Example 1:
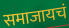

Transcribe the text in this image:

समाजायचं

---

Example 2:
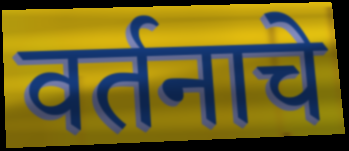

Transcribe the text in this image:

वर्तनाचे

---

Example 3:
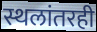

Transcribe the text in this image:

स्थलांतरही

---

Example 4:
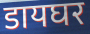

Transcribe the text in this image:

डायघर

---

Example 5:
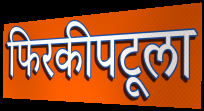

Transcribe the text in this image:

फिरकीपटूला